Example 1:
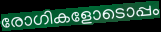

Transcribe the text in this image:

രോഗികളോടൊപ്പം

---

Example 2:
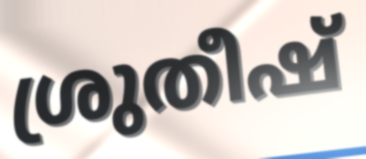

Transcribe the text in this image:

ശ്രുതീഷ്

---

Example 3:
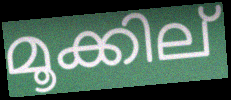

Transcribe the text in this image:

മൂക്കില്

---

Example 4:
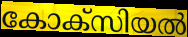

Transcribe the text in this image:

കോക്സിയൽ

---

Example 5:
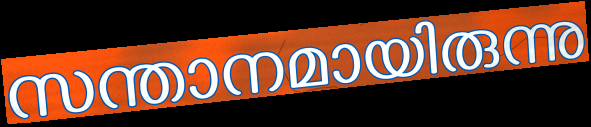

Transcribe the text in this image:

സന്താനമായിരുന്നു